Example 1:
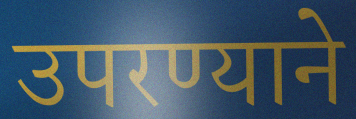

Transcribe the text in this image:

उपरण्याने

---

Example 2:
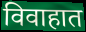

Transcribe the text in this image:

विवाहात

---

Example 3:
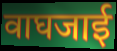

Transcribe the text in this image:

वाघजाई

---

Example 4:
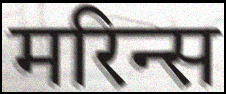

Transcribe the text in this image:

मरिन्स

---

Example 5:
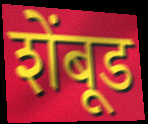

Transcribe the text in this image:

शेंबूड